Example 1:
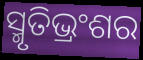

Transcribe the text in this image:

ସ୍ମୃତିଭ୍ରଂଶର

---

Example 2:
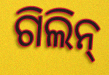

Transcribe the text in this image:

ଗିଲିନ୍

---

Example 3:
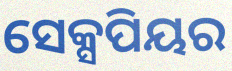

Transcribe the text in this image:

ସେକ୍ସପିୟର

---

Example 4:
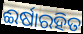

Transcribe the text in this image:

ଈର୍ଷାରହିତ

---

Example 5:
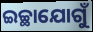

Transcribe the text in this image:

ଇଚ୍ଛାଯୋଗୁଁ